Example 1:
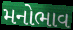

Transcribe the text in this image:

મનોભાવ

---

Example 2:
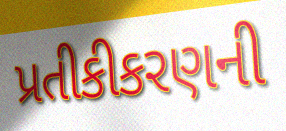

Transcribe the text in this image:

પ્રતીકીકરણની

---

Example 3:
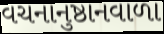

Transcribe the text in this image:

વચનાનુષ્ઠાનવાળા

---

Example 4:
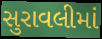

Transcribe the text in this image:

સુરાવલીમાં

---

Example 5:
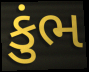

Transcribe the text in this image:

કુંભ